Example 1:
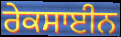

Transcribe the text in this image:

ਰੇਕਸਾਈਨ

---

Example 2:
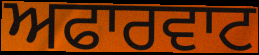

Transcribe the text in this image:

ਅਫਾਰਵਾਟ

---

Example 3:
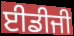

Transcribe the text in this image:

ਈਡੀਜੀ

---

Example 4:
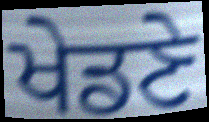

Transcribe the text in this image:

ਖੇਡਣੇ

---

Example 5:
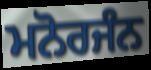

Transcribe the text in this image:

ਮਨੋਰਜੰਨ